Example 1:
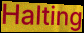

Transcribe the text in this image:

Halting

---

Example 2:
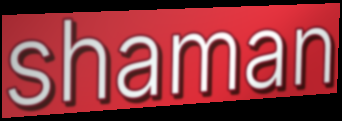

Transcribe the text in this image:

shaman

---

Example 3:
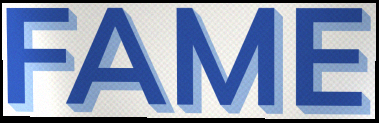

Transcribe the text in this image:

FAME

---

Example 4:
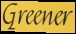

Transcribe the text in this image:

Greener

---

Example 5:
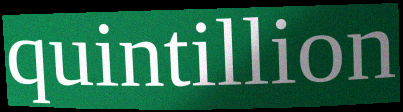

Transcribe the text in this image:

quintillion